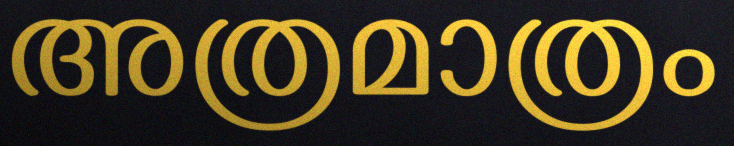
അത്രമാത്രം